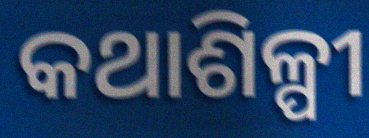
କଥାଶିଳ୍ପୀ